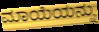
ಮಾಯೆಯನ್ನು